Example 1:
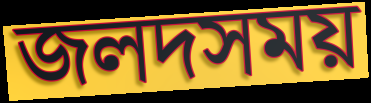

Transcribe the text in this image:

জলদসময়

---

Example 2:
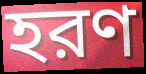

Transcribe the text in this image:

হরণ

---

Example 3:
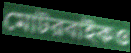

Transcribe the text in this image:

মোটরবাইকও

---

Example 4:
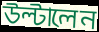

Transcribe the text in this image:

উল্টালেন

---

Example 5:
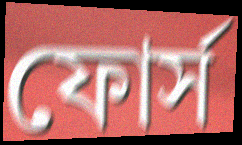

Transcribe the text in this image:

ফোর্স